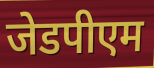
जेडपीएम